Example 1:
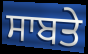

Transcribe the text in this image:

ਸਾਬਤੇ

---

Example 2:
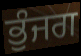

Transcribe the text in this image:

ਭੁੰਜਗ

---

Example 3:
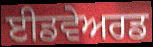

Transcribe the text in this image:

ਈਡਵੇਅਰਡ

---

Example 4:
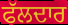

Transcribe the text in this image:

ਫੱਲਦਾਰ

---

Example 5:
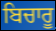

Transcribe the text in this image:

ਬਿਚਾਰੂ